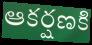
ఆకర్షణకి